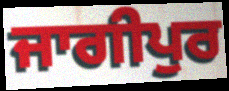
ਜਾਗੀਪੁਰ